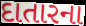
દાતારના